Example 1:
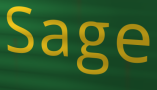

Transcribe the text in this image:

Sage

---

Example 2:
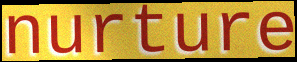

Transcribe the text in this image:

nurture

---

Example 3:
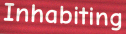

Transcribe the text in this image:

Inhabiting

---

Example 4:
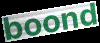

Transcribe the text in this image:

boond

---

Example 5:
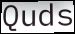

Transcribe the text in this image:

Quds